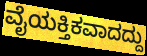
ವೈಯಕ್ತಿಕವಾದದ್ದು